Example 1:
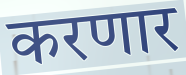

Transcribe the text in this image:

करणार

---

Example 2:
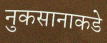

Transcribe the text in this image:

नुकसानाकडे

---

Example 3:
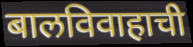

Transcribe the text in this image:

बालविवाहाची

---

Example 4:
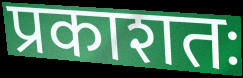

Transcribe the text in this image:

प्रकाशतः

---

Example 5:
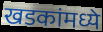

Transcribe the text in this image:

खडकांमध्ये